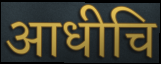
आधीचि